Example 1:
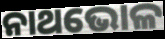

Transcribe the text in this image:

ନାଥଭୋଳ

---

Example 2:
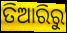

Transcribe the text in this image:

ତିଆରିରୁ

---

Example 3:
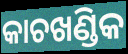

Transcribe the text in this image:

କାଚଖଣ୍ଡିକ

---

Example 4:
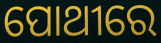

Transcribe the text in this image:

ପୋଥୀରେ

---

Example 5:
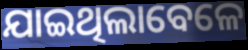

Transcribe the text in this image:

ଯାଇଥିଲାବେଳେ